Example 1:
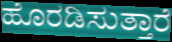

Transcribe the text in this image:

ಹೊರಡಿಸುತ್ತಾರೆ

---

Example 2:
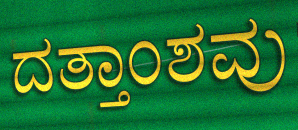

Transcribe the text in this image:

ದತ್ತಾಂಶವು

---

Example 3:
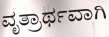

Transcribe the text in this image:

ವೃತ್ರಾರ್ಥವಾಗಿ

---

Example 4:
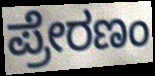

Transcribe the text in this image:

ಪ್ರೇರಣಂ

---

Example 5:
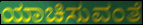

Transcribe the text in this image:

ಯಾಚಿಸುವಂತೆ